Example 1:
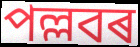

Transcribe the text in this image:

পল্লবৰ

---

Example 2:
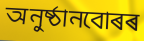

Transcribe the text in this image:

অনুষ্ঠানবোৰৰ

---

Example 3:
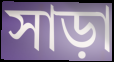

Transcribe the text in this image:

সাড়া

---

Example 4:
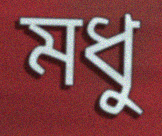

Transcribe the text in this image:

মধু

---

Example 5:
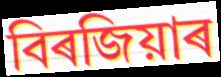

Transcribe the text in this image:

বিৰজিয়াৰ